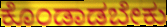
ಕೊಂಡಾಡಬೇಕು